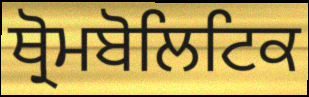
ਥ੍ਰੋਮਬੋਲਿਟਿਕ